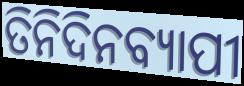
ତିନିଦିନବ୍ୟାପୀ